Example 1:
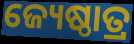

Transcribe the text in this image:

ଜ୍ୟେଷ୍ଠାତ୍ର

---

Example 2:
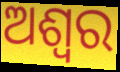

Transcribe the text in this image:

ଅଶ୍ୱର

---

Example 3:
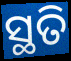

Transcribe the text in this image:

ସ୍ଥତି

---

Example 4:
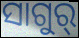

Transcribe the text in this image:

ସାଗୁର୍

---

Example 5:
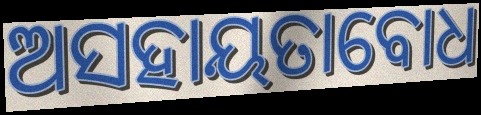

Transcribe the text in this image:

ଅସହାୟତାବୋଧ